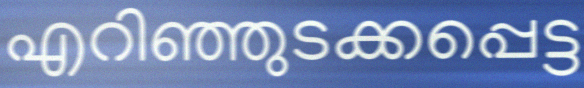
എറിഞ്ഞുടക്കപ്പെട്ട